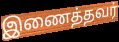
இணைத்தவர்